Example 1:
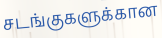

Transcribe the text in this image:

சடங்குகளுக்கான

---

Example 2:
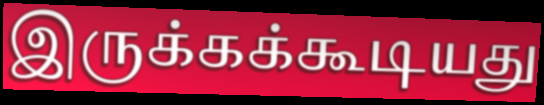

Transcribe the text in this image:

இருக்கக்கூடியது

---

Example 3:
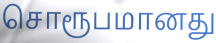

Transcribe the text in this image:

சொரூபமானது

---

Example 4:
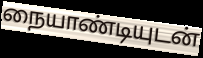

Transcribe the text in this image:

நையாண்டியுடன்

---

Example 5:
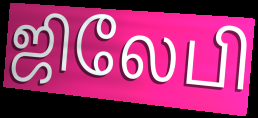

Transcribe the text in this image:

ஜிலேபி